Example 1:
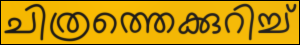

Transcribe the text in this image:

ചിത്രത്തെക്കുറിച്ച്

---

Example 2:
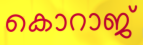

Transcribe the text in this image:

കൊറാജ്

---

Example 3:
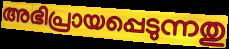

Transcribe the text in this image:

അഭിപ്രായപ്പെടുന്നതു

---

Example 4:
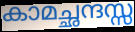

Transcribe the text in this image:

കാമച്ഛന്ദസ്സ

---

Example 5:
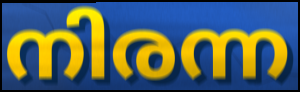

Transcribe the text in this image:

നിരന്ന